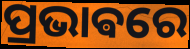
ପ୍ରଭାଵରେ